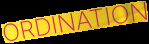
ORDINATION